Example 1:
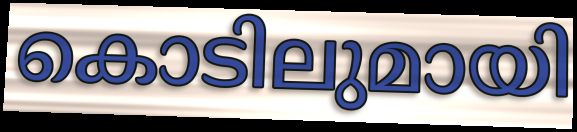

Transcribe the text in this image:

കൊടിലുമായി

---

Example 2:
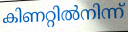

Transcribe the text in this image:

കിണറ്റിൽനിന്ന്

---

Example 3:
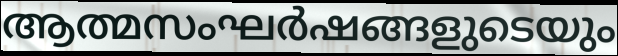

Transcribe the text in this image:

ആത്മസംഘർഷങ്ങളുടെയും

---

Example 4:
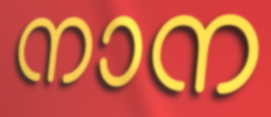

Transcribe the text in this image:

നാന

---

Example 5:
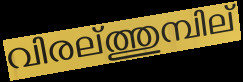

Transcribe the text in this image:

വിരല്ത്തുമ്പില്